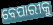
ବେପାରୀକୁ